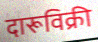
दारूविक्री